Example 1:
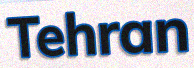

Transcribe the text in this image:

Tehran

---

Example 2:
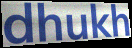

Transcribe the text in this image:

dhukh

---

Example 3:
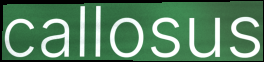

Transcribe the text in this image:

callosus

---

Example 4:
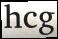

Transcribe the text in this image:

hcg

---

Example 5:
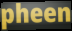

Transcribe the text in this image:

pheen